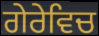
ਗੇਰੇਵਿਚ